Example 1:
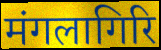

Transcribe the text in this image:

मंगलागिरि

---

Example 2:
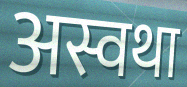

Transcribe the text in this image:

अस्वथा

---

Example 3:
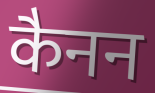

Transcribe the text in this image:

कैनन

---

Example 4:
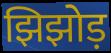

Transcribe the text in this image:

झिझोड़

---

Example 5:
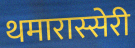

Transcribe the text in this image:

थमारास्सेरी